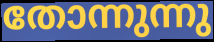
തോന്നുന്നു